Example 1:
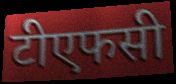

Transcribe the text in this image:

टीएफसी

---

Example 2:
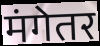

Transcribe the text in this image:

मंगेतर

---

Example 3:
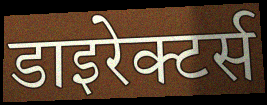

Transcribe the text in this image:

डाइरेक्टर्स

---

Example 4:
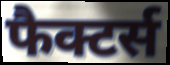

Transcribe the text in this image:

फैक्टर्स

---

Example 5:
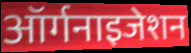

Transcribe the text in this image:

ऑर्गनाइजेशन